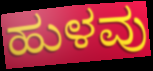
ಹುಳವು